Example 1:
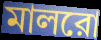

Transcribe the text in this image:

মালরো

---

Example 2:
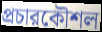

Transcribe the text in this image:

প্রচারকৌশল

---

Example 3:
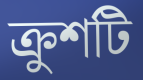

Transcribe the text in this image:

ক্রুশটি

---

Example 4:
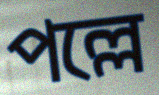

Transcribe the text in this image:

পল্লে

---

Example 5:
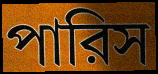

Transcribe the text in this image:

পারিস